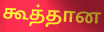
கூத்தான